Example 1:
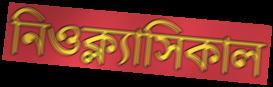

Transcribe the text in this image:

নিওক্ল্যাসিকাল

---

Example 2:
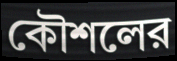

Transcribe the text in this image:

কৌশলের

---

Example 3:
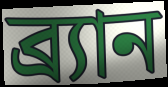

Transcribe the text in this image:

ব্র্যান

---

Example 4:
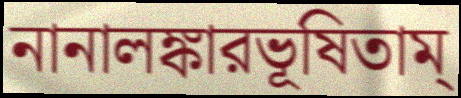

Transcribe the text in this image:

নানালঙ্কারভূষিতাম্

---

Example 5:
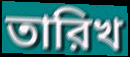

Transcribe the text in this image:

তারিখ